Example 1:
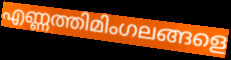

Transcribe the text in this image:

എണ്ണത്തിമിംഗലങ്ങളെ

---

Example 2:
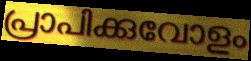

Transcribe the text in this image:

പ്രാപിക്കുവോളം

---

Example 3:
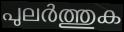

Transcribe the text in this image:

പുലർത്തുക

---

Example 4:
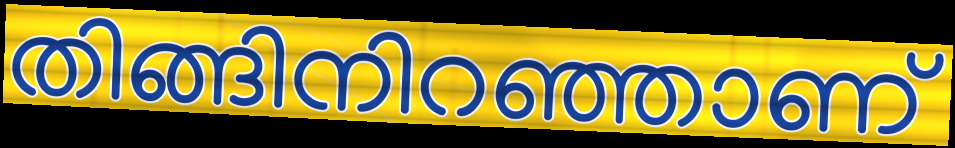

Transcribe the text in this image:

തിങ്ങിനിറഞ്ഞാണ്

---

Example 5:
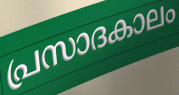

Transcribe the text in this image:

പ്രസാദകാലം